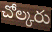
చోల్కరు